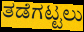
ತಡೆಗಟ್ಟಲು